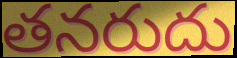
తనరుదు